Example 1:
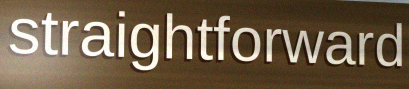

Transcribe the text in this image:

straightforward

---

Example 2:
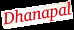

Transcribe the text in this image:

Dhanapal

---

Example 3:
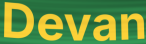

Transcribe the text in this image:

Devan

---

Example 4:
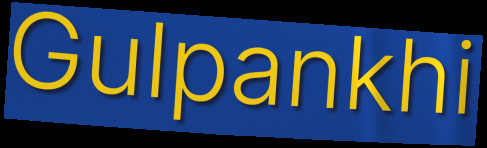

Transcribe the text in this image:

Gulpankhi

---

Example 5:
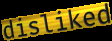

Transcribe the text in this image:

disliked